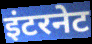
इंटरनेट